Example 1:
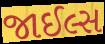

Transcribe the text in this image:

જાઈલ્સ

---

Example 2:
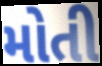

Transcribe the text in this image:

મોતી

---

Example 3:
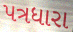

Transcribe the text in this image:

પત્રધારા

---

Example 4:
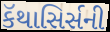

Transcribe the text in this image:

કૅથાસિર્સની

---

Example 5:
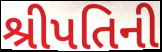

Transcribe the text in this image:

શ્રીપતિની